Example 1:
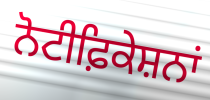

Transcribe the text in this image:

ਨੋਟੀਫ਼ਿਕੇਸ਼ਨਾਂ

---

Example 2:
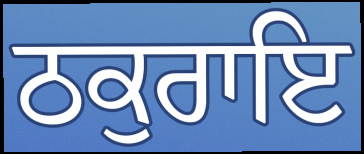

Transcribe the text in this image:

ਠਕੁਰਾਇ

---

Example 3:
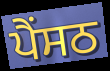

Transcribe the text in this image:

ਪੈਂਸਠ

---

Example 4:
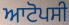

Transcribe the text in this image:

ਆਟੋਪਸੀ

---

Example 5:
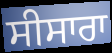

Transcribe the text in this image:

ਸੀਸਾਰਾ